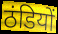
ठंडियों